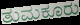
ತುಮಕೂರು